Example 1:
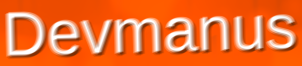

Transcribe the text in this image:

Devmanus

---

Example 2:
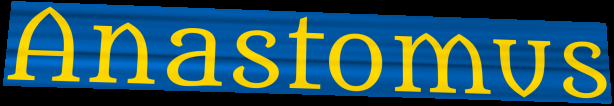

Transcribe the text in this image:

Anastomus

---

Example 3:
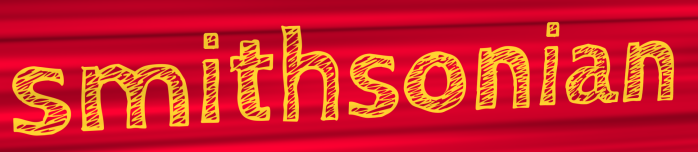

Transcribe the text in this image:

smithsonian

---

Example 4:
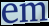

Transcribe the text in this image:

em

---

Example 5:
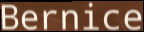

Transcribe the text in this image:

Bernice